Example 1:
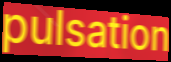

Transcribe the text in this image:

pulsation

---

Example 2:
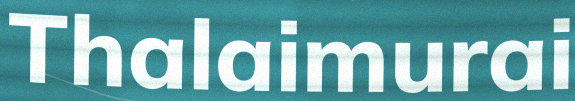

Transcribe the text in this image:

Thalaimurai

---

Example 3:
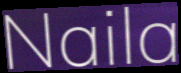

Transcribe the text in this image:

Naila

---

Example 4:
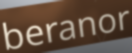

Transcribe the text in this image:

beranor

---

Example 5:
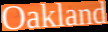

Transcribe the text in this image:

Oakland